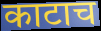
काटाच